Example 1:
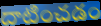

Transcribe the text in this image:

దాటించడం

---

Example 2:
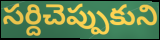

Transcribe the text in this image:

సర్దిచెప్పుకుని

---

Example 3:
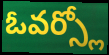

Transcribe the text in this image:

ఓవర్స్లో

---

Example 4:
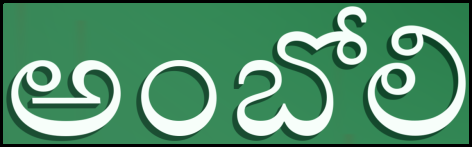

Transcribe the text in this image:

అంబోలి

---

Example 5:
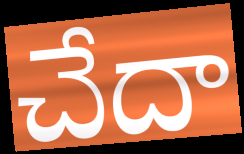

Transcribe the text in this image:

చేదా